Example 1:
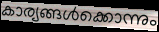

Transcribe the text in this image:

കാര്യങ്ങൾക്കൊന്നും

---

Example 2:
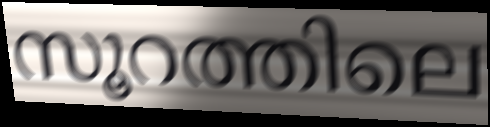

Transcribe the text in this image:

സൂറത്തിലെ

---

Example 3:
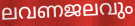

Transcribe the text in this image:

ലവണജലവും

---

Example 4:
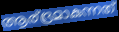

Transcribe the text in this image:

ആര്ദ്രമാകുന്നത്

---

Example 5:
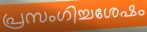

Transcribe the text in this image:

പ്രസംഗിച്ചശേഷം